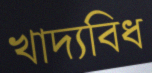
খাদ্যবিধ